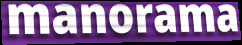
manorama